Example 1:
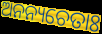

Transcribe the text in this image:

ଅନନ୍ୟଚେତାଃ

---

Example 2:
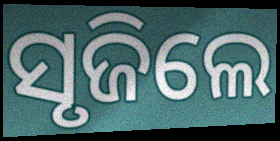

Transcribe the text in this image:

ସୃଜିଲେ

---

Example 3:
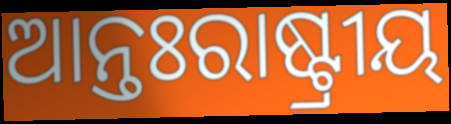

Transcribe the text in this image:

ଆନ୍ତଃରାଷ୍ଟ୍ରୀୟ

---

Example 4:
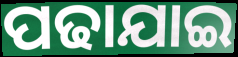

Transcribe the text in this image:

ପଢାଯାଇ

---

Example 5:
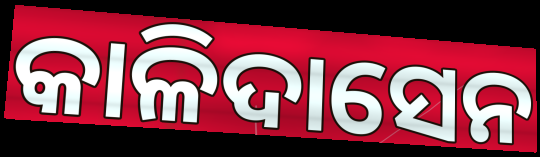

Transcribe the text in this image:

କାଳିଦାସେନ